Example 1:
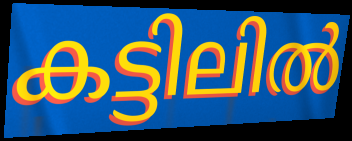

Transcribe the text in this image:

കട്ടിലിൽ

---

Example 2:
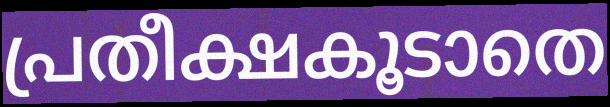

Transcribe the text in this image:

പ്രതീക്ഷകൂടാതെ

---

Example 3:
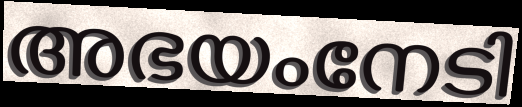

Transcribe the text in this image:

അഭയംനേടി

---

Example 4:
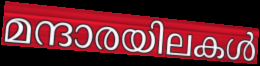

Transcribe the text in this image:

മന്ദാരയിലകൾ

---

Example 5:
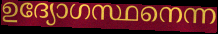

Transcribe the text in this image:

ഉദ്യോഗസ്ഥനെന്ന